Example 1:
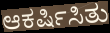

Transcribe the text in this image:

ಆಕರ್ಷಿಸಿತು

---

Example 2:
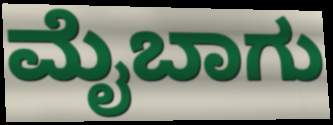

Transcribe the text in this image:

ಮೈಬಾಗು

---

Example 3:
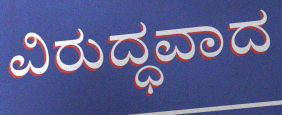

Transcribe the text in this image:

ವಿರುದ್ಧವಾದ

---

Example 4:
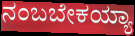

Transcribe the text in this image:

ನಂಬಬೇಕಯ್ಯಾ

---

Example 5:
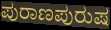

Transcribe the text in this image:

ಪುರಾಣಪುರುಷ